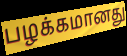
பழக்கமானது